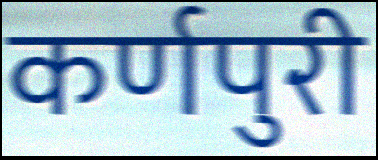
कर्णपुरी